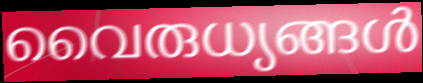
വൈരുധ്യങ്ങൾ